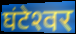
घंटेश्वर